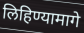
लिहिण्यामागे